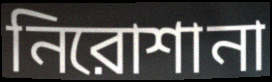
নিরোশানা